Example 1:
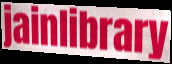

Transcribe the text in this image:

jainlibrary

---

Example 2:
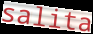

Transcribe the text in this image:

salita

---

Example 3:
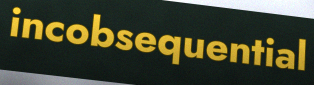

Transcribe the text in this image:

incobsequential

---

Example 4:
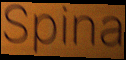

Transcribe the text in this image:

Spina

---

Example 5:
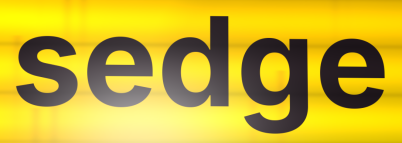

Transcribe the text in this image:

sedge